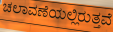
ಚಲಾವಣೆಯಲ್ಲಿರುತ್ತವೆ